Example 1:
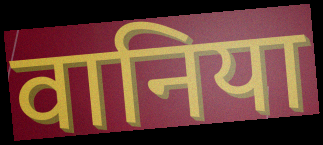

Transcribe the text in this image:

वानिया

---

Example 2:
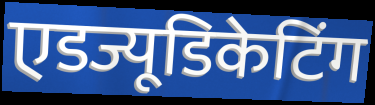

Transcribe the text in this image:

एडज्यूडिकेटिंग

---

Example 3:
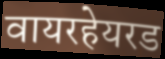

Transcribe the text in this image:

वायरहेयरड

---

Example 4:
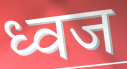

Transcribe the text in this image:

ध्वज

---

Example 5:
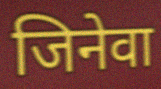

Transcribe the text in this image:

जिनेवा